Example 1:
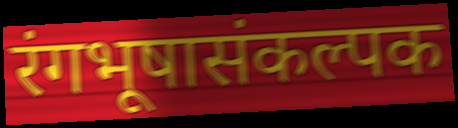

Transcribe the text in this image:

रंगभूषासंकल्पक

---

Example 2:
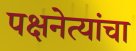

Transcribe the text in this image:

पक्षनेत्यांचा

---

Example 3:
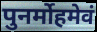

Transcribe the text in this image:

पुनर्मोहमेवं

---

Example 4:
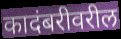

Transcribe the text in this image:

कादंबरीवरील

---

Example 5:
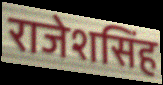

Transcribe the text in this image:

राजेशसिंह